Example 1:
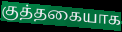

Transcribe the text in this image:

குத்தகையாக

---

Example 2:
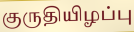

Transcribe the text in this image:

குருதியிழப்பு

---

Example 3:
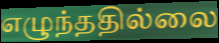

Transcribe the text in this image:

எழுந்ததில்லை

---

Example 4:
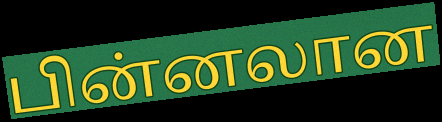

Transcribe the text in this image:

பின்னலான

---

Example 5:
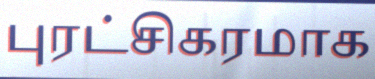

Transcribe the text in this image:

புரட்சிகரமாக